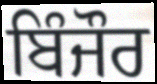
ਬਿੰਜੌਰ